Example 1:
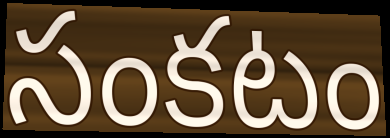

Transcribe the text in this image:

సంకటం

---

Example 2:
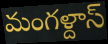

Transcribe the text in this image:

మంగళ్దాస్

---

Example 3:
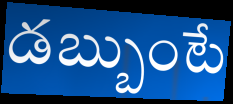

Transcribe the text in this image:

డబ్బుంటే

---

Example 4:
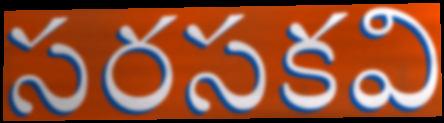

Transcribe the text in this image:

సరసకవి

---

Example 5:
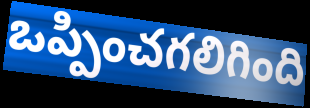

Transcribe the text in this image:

ఒప్పించగలిగింది